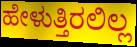
ಹೇಳುತ್ತಿರಲಿಲ್ಲ